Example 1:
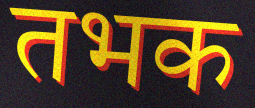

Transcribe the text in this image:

तभक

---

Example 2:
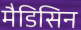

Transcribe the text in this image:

मैडिसिन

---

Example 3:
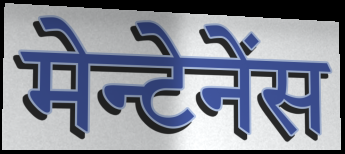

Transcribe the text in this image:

मेन्टेनेंस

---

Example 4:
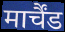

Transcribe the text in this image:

मार्चैंड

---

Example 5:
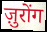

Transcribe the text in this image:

ज़ुरोंग